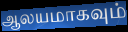
ஆலயமாகவும்